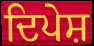
ਦਿਪੇਸ਼